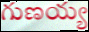
గుణయ్య